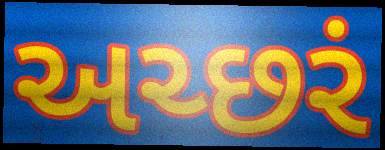
અચ્છરં